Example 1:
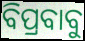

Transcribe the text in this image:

ବିପ୍ରବାବୁ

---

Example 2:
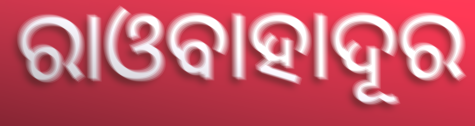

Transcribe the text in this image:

ରାଓବାହାଦୂର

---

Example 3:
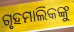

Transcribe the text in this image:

ଗୃହମାଲିକଙ୍କୁ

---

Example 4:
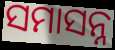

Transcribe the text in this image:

ସମାସନ୍ନ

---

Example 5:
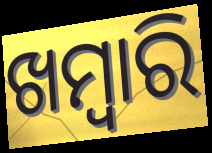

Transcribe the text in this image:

ଖମ୍ୱାରି